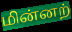
மின்னற்